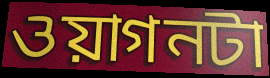
ওয়াগনটা